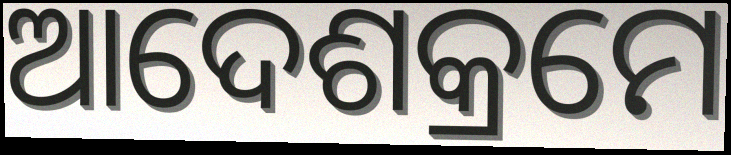
ଆଦେଶକ୍ରମେ